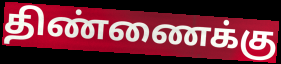
திண்ணைக்கு